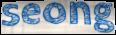
seong